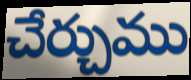
చేర్చుము